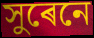
সুৰেনে